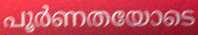
പൂർണതയോടെ